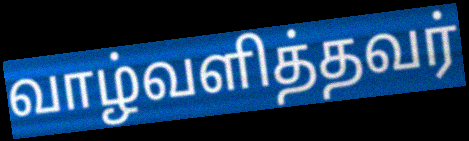
வாழ்வளித்தவர்